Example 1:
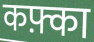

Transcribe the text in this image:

कफ़्का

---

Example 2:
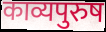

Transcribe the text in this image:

काव्यपुरुष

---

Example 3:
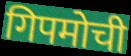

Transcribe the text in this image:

गिपमोची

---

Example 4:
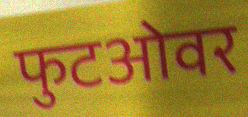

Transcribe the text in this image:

फुटओवर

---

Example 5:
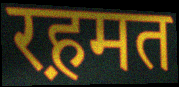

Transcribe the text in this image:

रह़मत